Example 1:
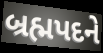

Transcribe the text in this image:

બ્રહ્મપદને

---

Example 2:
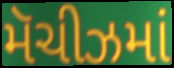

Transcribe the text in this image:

મૅચીઝમાં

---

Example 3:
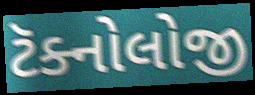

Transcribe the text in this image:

ટૅક્નોલોજી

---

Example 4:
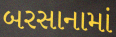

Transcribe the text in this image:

બરસાનામાં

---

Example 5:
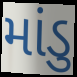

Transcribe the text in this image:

માંડુ